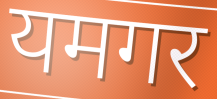
यमगर